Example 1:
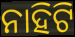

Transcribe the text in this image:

ନାହିଟି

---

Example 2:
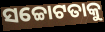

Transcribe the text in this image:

ସଚ୍ଚୋଟତାକୁ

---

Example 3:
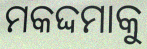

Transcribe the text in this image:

ମକଦ୍ଦମାକୁ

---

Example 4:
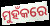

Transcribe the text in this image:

ମୁହଁକରେ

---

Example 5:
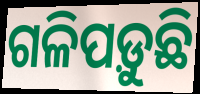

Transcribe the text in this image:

ଗଳିପଡ଼ୁଛି